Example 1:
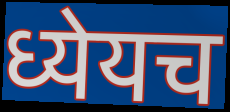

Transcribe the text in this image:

ध्येयच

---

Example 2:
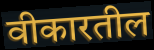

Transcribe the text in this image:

वीकारतील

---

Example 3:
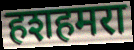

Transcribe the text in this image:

हशहमरा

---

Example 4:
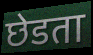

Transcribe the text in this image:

छेडता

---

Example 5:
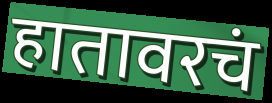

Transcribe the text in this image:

हातावरचं